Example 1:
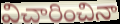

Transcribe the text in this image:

విచారించినా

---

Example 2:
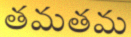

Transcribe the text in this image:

తమతమ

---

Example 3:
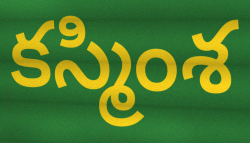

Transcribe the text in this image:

కస్మింశ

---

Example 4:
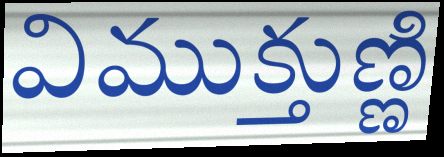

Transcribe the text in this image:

విముక్తుణ్ణి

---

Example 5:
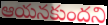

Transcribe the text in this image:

ఆయనకుందని